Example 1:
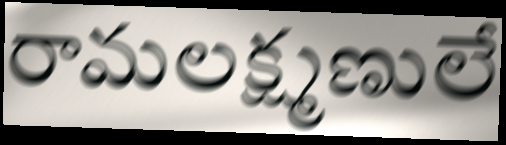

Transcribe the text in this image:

రామలక్ష్మణులే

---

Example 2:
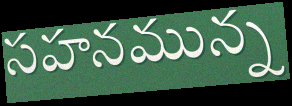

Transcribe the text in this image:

సహనమున్న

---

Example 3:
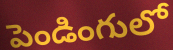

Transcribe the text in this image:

పెండింగులో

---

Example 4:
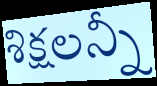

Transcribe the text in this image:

శిక్షలన్నీ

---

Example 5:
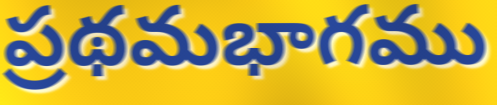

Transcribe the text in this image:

ప్రథమభాగము